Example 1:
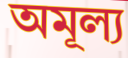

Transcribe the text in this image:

অমূল্য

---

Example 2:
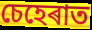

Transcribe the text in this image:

চেহেৰাত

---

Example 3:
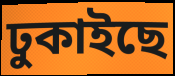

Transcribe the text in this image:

ঢুকাইছে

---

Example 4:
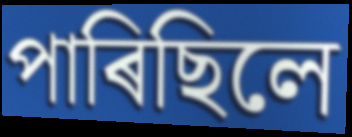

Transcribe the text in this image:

পাৰিছিলে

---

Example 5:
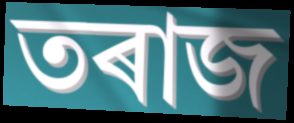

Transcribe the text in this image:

তৰাজ